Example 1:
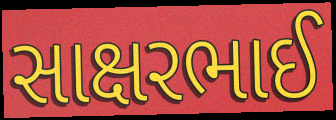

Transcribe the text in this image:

સાક્ષરભાઈ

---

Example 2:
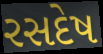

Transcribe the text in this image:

રસદેષ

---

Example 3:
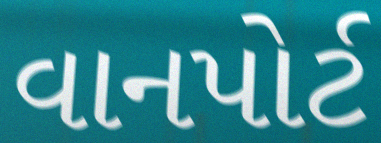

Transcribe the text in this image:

વાનપોર્ટ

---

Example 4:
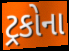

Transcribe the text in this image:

ટ્રકોના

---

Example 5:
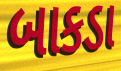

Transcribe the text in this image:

બાકડા